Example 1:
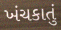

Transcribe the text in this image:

ખંચકાતું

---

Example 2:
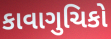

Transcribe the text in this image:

કાવાગુચિકો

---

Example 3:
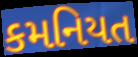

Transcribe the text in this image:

કમનિયત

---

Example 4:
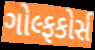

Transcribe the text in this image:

ગોલ્ફકોર્સ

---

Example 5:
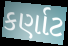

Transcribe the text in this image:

કર્ણાટ